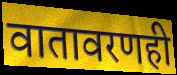
वातावरणही